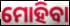
ମୋହିବା